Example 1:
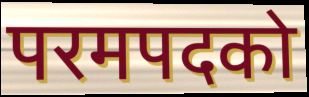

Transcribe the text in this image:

परमपदको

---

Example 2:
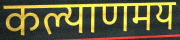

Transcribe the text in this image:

कल्याणमय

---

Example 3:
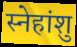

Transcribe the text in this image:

स्नेहांशु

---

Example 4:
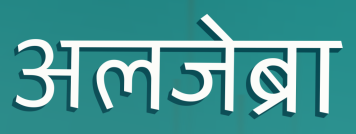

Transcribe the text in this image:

अलजेब्रा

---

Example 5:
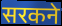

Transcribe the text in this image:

सरकने